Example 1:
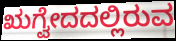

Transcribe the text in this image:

ಋಗ್ವೇದದಲ್ಲಿರುವ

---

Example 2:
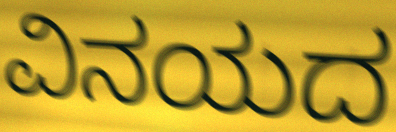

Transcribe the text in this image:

ವಿನಯದ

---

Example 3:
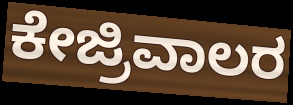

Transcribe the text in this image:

ಕೇಜ್ರಿವಾಲರ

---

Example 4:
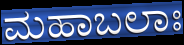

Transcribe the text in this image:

ಮಹಾಬಲಾಃ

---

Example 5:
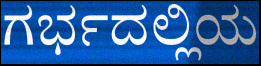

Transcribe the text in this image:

ಗರ್ಭದಲ್ಲಿಯ